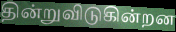
தின்றுவிடுகின்றன